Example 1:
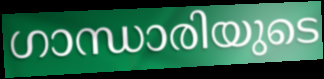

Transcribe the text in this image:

ഗാന്ധാരിയുടെ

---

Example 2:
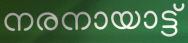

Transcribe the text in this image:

നരനായാട്ട്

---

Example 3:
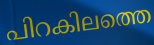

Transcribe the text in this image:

പിറകിലത്തെ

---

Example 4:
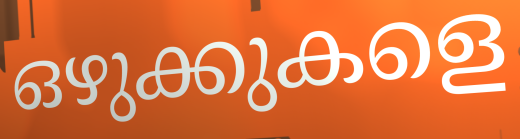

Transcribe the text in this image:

ഒഴുക്കുകളെ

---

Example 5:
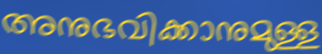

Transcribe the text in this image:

അനുഭവിക്കാനുമുള്ള